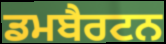
ਡਮਬੈਰਟਨ